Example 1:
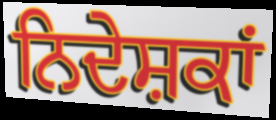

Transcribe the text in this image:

ਨਿਦੇਸ਼ਕਾਂ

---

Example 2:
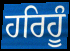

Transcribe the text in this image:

ਹਰਿਹੂੰ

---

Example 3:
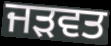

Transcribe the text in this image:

ਜੜਵਤ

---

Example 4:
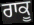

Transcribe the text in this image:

ਰਾਕੂ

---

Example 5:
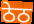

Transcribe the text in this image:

ਠੇਠ